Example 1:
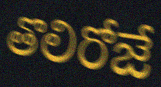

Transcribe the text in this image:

తొలిరోజే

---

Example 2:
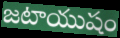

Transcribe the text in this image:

జటాయుషం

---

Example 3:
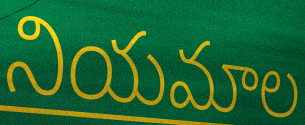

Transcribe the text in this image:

నియమాల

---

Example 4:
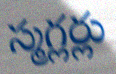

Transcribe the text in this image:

స్మగ్లర్లు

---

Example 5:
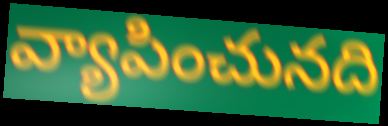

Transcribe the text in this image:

వ్యాపించునది